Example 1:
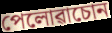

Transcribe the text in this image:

পেলোৱাচোন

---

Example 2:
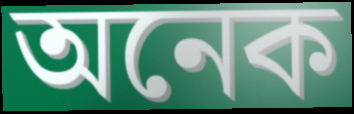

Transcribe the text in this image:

অনেক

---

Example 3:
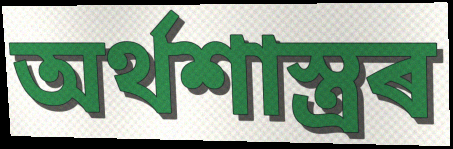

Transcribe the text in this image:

অৰ্থশাস্ত্ৰৰ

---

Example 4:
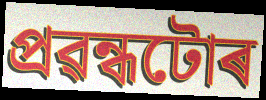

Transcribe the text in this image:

প্ৰৱন্ধটোৰ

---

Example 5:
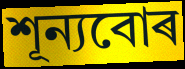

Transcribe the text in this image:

শূন্যবোৰ